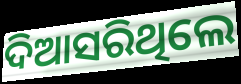
ଦିଆସରିଥିଲେ